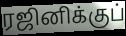
ரஜினிக்குப்